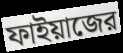
ফাইয়াজের